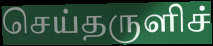
செய்தருளிச்